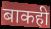
बाकही